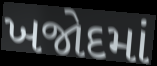
ખજોદમાં